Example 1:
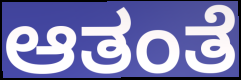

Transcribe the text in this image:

ಆತಂತೆ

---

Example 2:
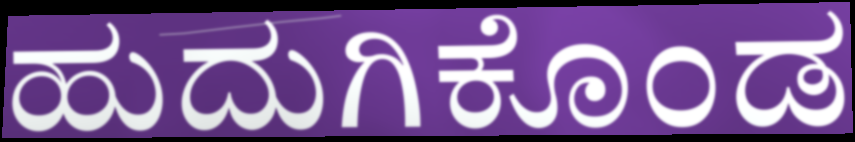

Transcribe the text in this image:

ಹುದುಗಿಕೊಂಡ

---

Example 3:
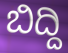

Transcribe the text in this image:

ಬಿದ್ದಿ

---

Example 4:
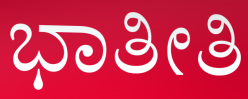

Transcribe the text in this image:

ಭಾತೀತಿ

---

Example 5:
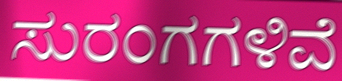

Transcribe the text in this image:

ಸುರಂಗಗಳಿವೆ